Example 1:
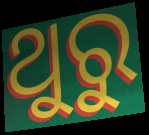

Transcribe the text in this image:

ଥୁରୁ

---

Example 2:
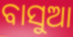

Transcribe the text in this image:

ବାସୁଆ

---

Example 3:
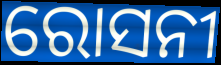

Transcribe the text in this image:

ରୋସନୀ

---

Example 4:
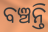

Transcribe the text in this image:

ବଞ୍ଚନ୍ତି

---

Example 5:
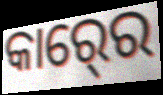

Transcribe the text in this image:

କାର୍‍ରେ